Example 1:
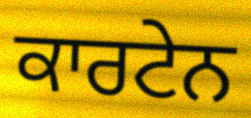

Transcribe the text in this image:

ਕਾਰਟੇਨ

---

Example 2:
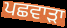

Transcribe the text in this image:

ਪਛਵਾੜਾ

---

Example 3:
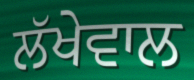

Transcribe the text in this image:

ਲੱਖੇਵਾਲ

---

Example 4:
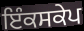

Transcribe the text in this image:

ਇੰਕਸਕੇਪ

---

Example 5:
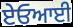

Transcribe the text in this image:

ਏਓਆਈ